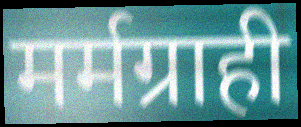
मर्मग्राही